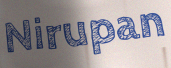
Nirupan